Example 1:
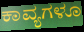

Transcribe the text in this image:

ಕಾವ್ಯಗಳೂ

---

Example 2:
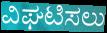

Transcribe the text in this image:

ವಿಘಟಿಸಲು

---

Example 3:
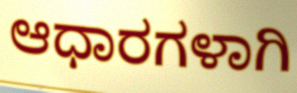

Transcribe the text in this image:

ಆಧಾರಗಳಾಗಿ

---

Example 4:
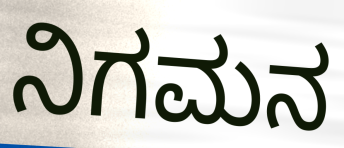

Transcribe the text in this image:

ನಿಗಮನ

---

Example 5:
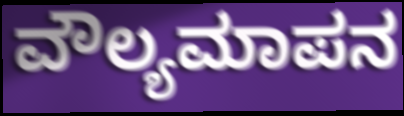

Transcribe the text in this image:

ವೌಲ್ಯಮಾಪನ